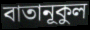
বাতানূকুল